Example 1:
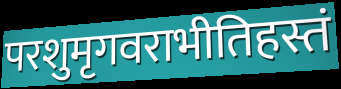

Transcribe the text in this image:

परशुमृगवराभीतिहस्तं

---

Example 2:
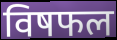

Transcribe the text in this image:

विषफल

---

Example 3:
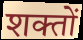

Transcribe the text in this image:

शक्तों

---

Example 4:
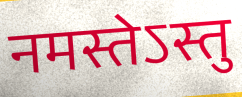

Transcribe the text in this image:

नमस्तेऽस्तु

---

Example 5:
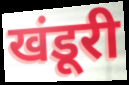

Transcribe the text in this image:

खंडूरी